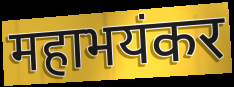
महाभयंकर